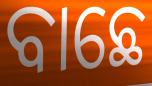
ବାଛେ